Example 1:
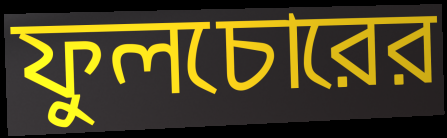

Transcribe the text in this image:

ফুলচোরের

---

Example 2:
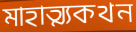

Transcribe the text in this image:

মাহাত্ম্যকথন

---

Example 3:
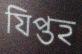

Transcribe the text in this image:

যিপ্তহ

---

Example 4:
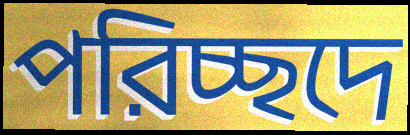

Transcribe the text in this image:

পরিচ্ছদে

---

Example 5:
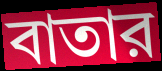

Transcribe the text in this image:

বাতার